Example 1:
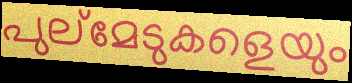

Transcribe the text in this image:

പുല്മേടുകളെയും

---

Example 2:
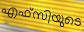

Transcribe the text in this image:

എഫ്സിയുടെ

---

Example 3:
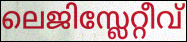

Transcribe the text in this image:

ലെജിസ്ലേറ്റീവ്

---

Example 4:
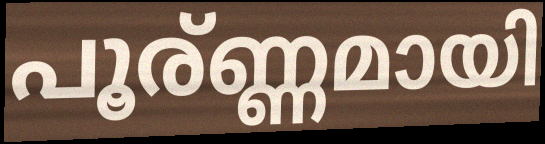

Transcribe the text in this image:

പൂര്ണ്ണമായി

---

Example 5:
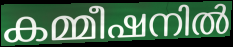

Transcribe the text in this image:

കമ്മീഷനിൽ